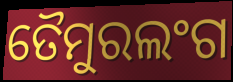
ତୈମୁରଲଂଗ